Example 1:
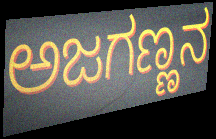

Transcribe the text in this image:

ಅಜಗಣ್ಣನ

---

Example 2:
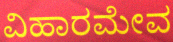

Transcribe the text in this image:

ವಿಹಾರಮೇವ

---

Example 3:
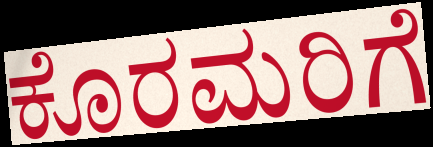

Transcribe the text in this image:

ಕೊರಮರಿಗೆ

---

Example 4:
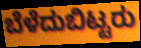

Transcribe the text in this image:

ಬೆಳೆದುಬಿಟ್ಟರು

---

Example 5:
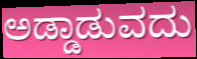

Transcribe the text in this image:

ಅಡ್ಡಾಡುವದು